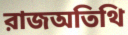
রাজঅতিথি